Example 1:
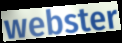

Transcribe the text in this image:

webster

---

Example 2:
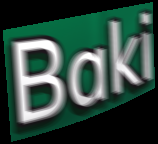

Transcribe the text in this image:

Baki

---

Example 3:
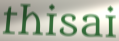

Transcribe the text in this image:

thisai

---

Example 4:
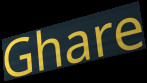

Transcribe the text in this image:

Ghare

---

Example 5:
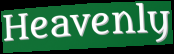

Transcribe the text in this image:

Heavenly